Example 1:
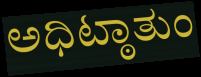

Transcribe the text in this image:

ಅಧಿಟ್ಠಾತುಂ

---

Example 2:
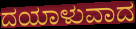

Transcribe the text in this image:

ದಯಾಳುವಾದ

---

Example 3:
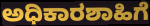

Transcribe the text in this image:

ಅಧಿಕಾರಶಾಹಿಗೆ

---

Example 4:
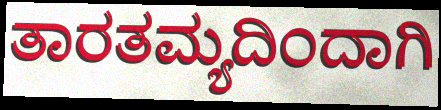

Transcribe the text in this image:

ತಾರತಮ್ಯದಿಂದಾಗಿ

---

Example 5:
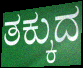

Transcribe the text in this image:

ತಕ್ಕುದ